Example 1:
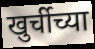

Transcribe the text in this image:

खुर्चीच्या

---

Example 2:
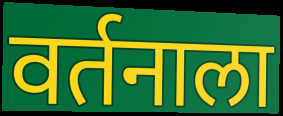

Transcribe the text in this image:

वर्तनाला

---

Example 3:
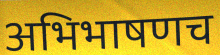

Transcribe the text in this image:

अभिभाषणच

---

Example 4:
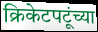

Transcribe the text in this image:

क्रिकेटपटूंच्या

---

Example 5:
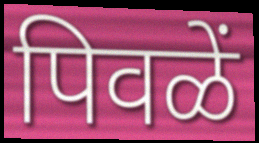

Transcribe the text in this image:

पिवळें